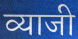
व्याजी